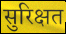
सुरिक्षत